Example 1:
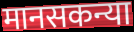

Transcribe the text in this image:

मानसकन्या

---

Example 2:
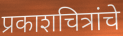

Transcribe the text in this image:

प्रकाशचित्रांचे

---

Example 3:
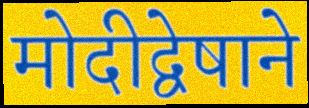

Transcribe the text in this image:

मोदीद्वेषाने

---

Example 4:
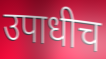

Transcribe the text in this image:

उपाधीच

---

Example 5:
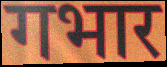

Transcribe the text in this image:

गभार